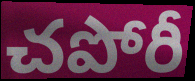
చపోరీ